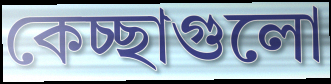
কেচ্ছাগুলো